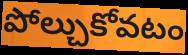
పోల్చుకోవటం